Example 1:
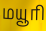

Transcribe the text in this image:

மயூரி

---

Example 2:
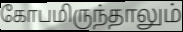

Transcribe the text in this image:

கோபமிருந்தாலும்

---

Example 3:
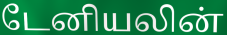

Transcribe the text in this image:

டேனியலின்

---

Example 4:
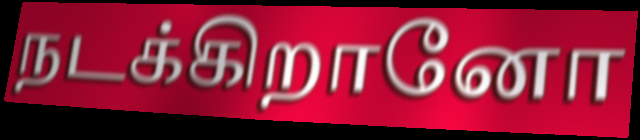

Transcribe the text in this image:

நடக்கிறானோ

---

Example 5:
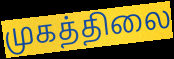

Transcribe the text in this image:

முகத்திலை